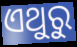
ଏଥୁରୁ